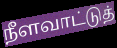
நீளவாட்டுத்